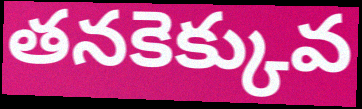
తనకెక్కువ